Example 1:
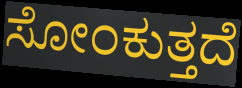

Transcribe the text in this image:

ಸೋಂಕುತ್ತದೆ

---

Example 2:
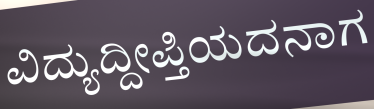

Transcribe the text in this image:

ವಿದ್ಯುದ್ದೀಪ್ತಿಯದನಾಗ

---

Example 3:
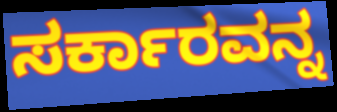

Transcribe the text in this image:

ಸರ್ಕಾರವನ್ನ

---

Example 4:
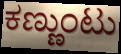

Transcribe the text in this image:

ಕಣ್ಣುಂಟು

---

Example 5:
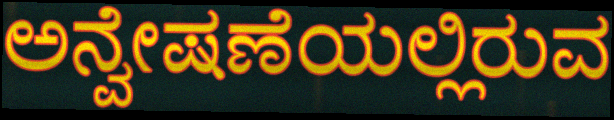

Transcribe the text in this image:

ಅನ್ವೇಷಣೆಯಲ್ಲಿರುವ